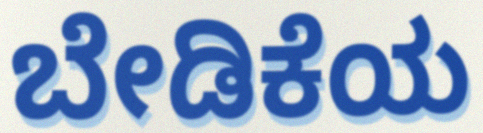
ಬೇಡಿಕೆಯ